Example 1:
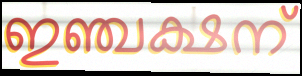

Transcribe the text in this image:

ഇഞ്ചക്ഷന്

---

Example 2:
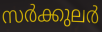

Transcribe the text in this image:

സർക്കുലർ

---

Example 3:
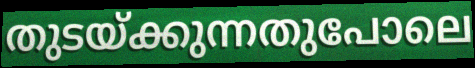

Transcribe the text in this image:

തുടയ്ക്കുന്നതുപോലെ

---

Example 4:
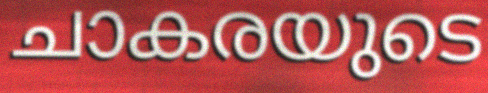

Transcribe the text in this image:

ചാകരയുടെ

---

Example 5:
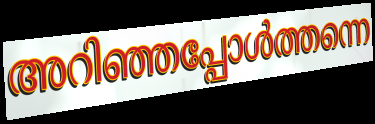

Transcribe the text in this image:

അറിഞ്ഞപ്പോൾത്തന്നെ